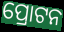
ପ୍ରୋଟନ